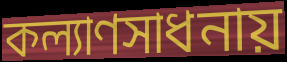
কল্যাণসাধনায়